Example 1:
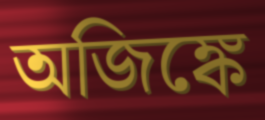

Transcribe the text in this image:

অজিঙ্কে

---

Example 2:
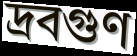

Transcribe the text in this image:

দ্রবগুণ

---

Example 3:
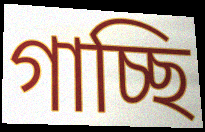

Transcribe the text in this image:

গাচ্ছি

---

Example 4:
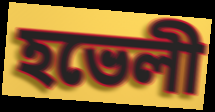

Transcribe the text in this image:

হভেলী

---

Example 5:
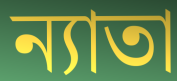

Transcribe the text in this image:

ন্যাতা